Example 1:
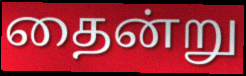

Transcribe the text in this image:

தைன்று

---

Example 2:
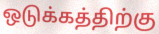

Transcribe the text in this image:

ஒடுக்கத்திற்கு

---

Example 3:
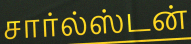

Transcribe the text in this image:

சார்ல்ஸ்டன்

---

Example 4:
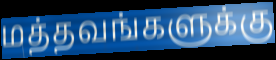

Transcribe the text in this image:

மத்தவங்களுக்கு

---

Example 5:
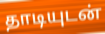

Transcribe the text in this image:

தாடியுடன்